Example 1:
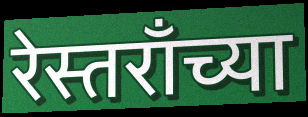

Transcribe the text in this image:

रेस्तराँच्या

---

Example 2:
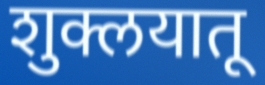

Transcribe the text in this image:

शुक्लयातू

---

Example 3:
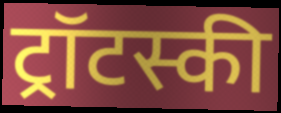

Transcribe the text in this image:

ट्रॉटस्की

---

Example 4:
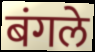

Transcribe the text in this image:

बंगले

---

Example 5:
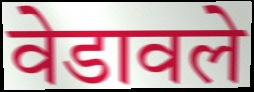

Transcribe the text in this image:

वेडावले